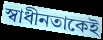
স্বাধীনতাকেই